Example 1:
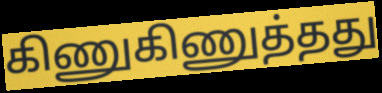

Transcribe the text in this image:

கிணுகிணுத்தது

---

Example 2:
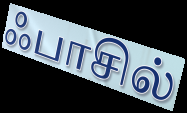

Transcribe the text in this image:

ஃபாசில்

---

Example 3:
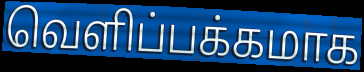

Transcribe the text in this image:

வெளிப்பக்கமாக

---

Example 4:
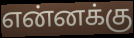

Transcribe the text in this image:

என்னக்கு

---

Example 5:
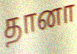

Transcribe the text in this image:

தானா